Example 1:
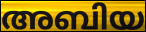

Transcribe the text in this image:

അബിയ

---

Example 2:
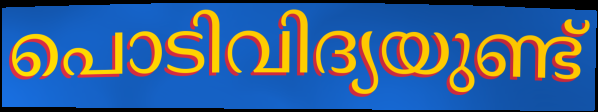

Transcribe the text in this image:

പൊടിവിദ്യയുണ്ട്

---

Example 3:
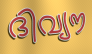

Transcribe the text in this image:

ദിവ്യൗ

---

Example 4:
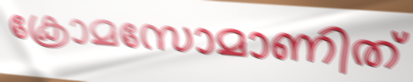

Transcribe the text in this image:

ക്രോമസോമാണിത്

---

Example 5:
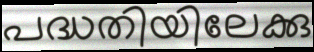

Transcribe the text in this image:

പദ്ധതിയിലേക്കു